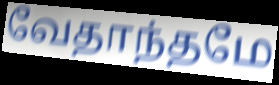
வேதாந்தமே